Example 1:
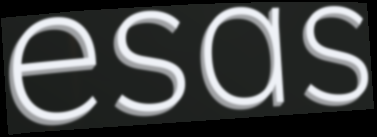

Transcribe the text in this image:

esas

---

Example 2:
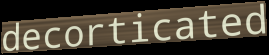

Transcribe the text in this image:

decorticated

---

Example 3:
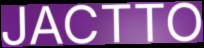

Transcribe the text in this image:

JACTTO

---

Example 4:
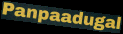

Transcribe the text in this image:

Panpaadugal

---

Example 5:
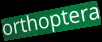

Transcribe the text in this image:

orthoptera